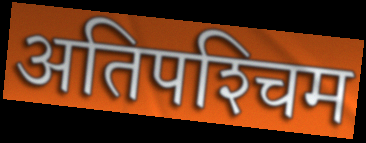
अतिपश्चिम